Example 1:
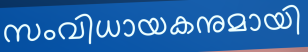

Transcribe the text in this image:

സംവിധായകനുമായി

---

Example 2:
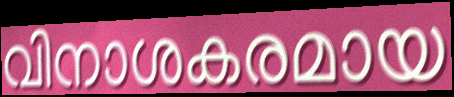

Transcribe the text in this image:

വിനാശകരമായ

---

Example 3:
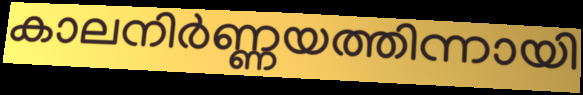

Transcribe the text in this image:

കാലനിർണ്ണയത്തിന്നായി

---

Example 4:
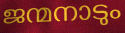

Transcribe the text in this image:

ജന്മനാടും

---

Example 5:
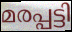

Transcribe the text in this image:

മരപ്പട്ടി